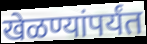
खेळण्यांपर्यंत